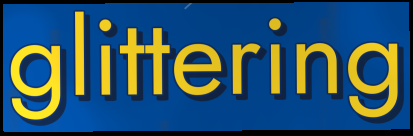
glittering